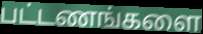
பட்டணங்களை